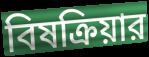
বিষক্রিয়ার